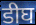
डीघ